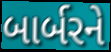
બાર્બરને